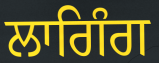
ਲਾਗਿੰਗ